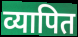
व्यापित